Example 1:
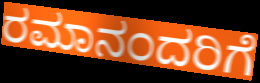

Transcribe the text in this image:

ರಮಾನಂದರಿಗೆ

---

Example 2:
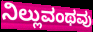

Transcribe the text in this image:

ನಿಲ್ಲುವಂಥವು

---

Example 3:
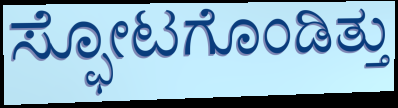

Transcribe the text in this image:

ಸ್ಫೋಟಗೊಂಡಿತ್ತು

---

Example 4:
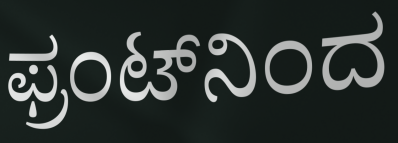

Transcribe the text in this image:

ಫ್ರಂಟ್‌ನಿಂದ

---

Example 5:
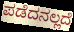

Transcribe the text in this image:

ಪಡೆದನಲ್ಲದೆ